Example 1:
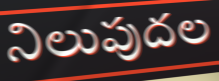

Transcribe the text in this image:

నిలుపుదల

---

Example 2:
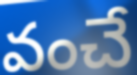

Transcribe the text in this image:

వంచే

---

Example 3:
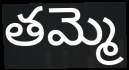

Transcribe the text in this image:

తమ్మె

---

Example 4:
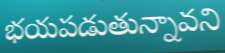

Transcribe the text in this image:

భయపడుతున్నావని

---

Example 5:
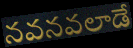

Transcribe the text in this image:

నవనవలాడే